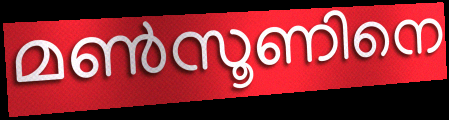
മൺസൂണിനെ